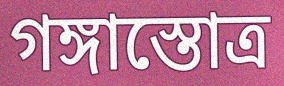
গঙ্গাস্তোত্র